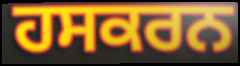
ਹਸਕਰਨ